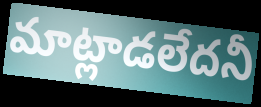
మాట్లాడలేదనీ